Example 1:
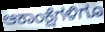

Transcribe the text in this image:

ಆಕಾಂಕ್ಷೆಗಳಿಗೂ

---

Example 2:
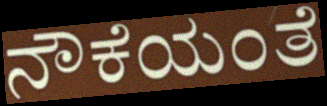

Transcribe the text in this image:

ನೌಕೆಯಂತೆ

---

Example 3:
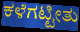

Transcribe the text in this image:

ಕಳೆಗಟ್ಟೀತು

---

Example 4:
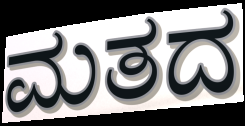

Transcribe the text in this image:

ಮತದ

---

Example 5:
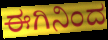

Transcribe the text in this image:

ಈಗಿನಿಂದ